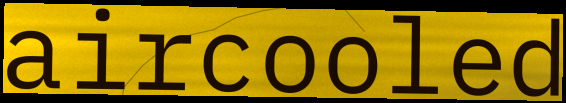
aircooled